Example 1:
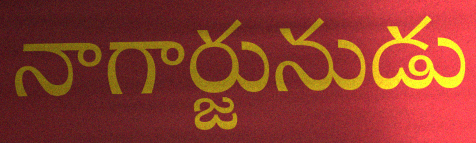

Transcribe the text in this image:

నాగార్జునుడు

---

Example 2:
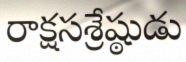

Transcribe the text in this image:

రాక్షసశ్రేష్ఠుడు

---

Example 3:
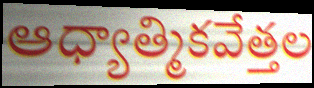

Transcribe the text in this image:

ఆధ్యాత్మికవేత్తల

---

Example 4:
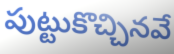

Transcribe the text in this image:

పుట్టుకొచ్చినవే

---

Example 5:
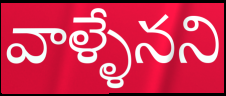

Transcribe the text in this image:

వాళ్ళేనని